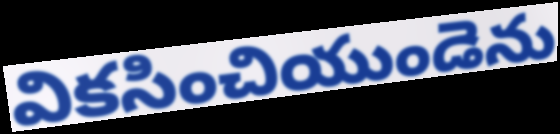
వికసించియుండెను